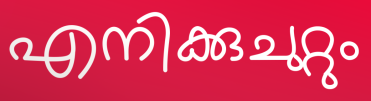
എനിക്കുചുറ്റും